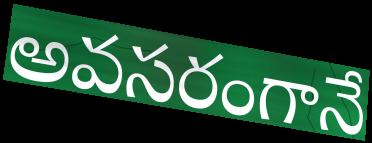
అవసరంగానే